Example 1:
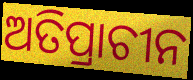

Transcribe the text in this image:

ଅତିପ୍ରାଚୀନ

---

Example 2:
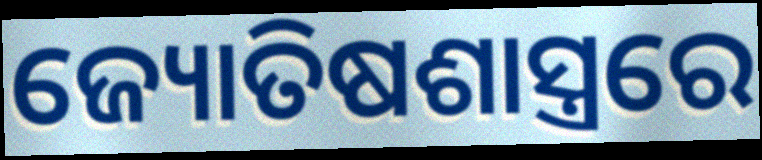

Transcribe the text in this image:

ଜ୍ୟୋତିଷଶାସ୍ତ୍ରରେ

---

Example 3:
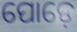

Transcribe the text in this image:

ପୋଡ଼େ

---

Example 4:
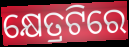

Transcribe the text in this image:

କ୍ଷେତ୍ରଟିରେ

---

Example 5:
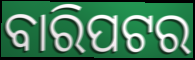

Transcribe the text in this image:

ବାରିପଟର